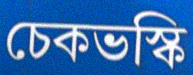
চেকভস্কি